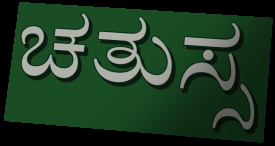
ಚತುಸ್ಸ